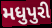
મધુપુરી